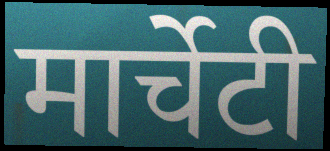
मार्चेटी